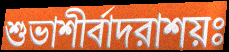
শুভাশীর্বাদরাশয়ঃ